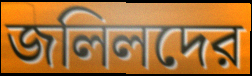
জলিলদের